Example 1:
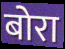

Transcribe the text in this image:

बोरा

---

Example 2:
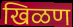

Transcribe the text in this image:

खिळण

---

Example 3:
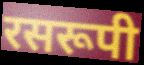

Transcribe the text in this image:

रसरूपी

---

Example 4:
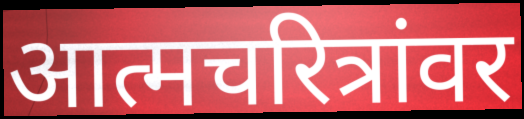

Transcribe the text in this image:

आत्मचरित्रांवर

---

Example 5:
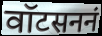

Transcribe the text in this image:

वॉटसननं